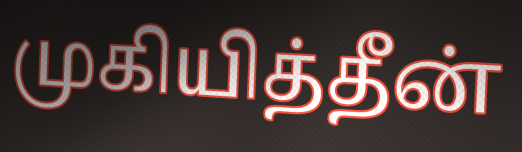
முகியித்தீன்